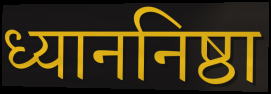
ध्याननिष्ठा